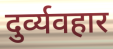
दुर्व्यवहार